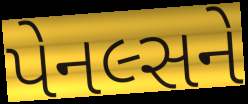
પેનલ્સને